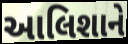
આલિશાને